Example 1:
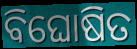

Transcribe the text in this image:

ବିଘୋଷିତ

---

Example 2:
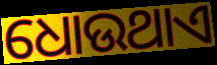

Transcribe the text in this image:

ଧୋଉଥାଏ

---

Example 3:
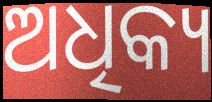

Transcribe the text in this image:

ଅଧିକ୍ୟ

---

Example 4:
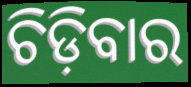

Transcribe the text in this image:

ଚିଡ଼ିବାର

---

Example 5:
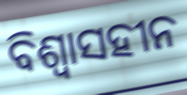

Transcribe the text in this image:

ବିଶ୍ୱାସହୀନ